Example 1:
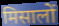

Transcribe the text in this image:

मिसालों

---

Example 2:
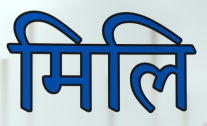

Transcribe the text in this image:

मिलि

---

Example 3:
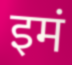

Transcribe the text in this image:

इमं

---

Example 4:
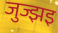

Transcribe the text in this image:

जुज्झइ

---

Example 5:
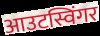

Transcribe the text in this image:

आउटस्विंगर